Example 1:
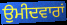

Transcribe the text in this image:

ਉੁਮੀਦਵਾਰਾਂ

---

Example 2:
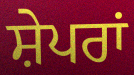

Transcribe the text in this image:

ਸ਼ੇਪਰਾਂ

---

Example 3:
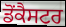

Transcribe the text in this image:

ਡੋਂਕੈਸਟਰ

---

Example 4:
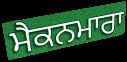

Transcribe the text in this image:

ਮੈਕਨਮਾਰਾ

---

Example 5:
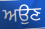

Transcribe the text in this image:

ਅਉਣ